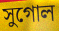
সুগোল